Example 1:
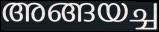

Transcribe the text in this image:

അങ്ങയച്ച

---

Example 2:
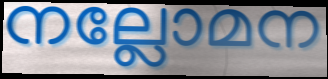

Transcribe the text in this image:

നല്ലോമന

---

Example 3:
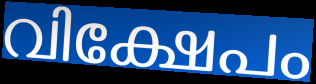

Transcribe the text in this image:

വിക്ഷേപം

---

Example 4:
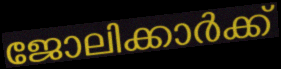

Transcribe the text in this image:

ജോലിക്കാർക്ക്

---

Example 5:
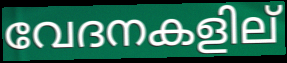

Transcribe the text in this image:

വേദനകളില്